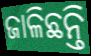
ଜାଳିଛନ୍ତି